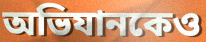
অভিযানকেও